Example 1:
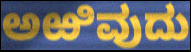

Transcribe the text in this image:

ಅಱಿವುದು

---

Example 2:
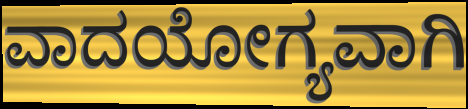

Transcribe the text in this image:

ವಾದಯೋಗ್ಯವಾಗಿ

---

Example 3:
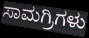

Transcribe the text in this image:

ಸಾಮಗ್ರಿಗಳು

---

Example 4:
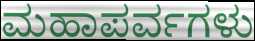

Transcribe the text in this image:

ಮಹಾಪರ್ವಗಳು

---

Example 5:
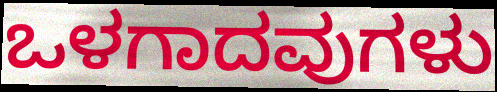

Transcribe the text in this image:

ಒಳಗಾದವುಗಳು